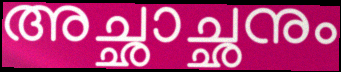
അച്ഛാച്ഛനും